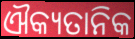
ଐକ୍ୟତାନିକ